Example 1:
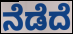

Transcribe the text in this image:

ನೆಡೆದೆ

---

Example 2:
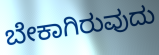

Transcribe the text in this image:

ಬೇಕಾಗಿರುವುದು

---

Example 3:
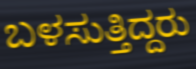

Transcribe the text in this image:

ಬಳಸುತ್ತಿದ್ದರು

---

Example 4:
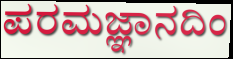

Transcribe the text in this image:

ಪರಮಜ್ಞಾನದಿಂ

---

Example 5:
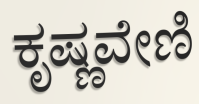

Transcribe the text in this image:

ಕೃಷ್ಣವೇಣಿ